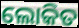
ଲୋକିତ